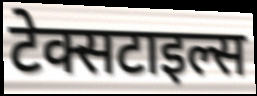
टेक्सटाइल्स